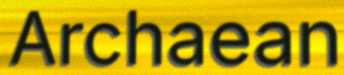
Archaean